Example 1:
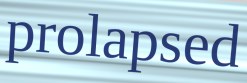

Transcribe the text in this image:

prolapsed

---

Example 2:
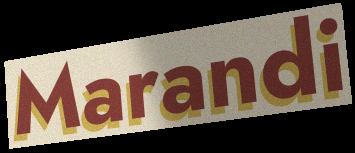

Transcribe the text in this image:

Marandi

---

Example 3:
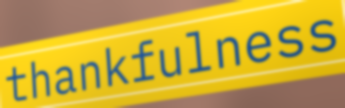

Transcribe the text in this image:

thankfulness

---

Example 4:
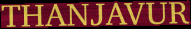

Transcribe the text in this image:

THANJAVUR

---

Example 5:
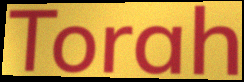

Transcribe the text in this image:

Torah